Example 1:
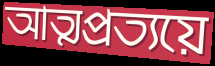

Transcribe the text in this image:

আত্মপ্রত্যয়ে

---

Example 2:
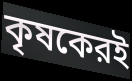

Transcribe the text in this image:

কৃষকেরই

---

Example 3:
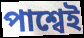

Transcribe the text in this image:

পাশ্বেই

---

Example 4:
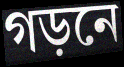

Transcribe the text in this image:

গড়নে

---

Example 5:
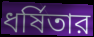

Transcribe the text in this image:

ধর্ষিতার